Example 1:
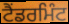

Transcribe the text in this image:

ਟੈਂਡਰਮਿੰਟ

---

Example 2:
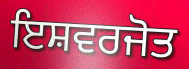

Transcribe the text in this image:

ਇਸ਼ਵਰਜੋਤ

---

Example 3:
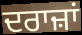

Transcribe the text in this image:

ਦਰਾਜ਼ਾਂ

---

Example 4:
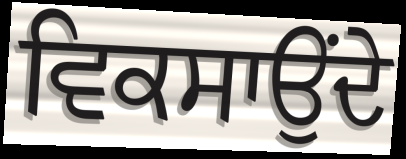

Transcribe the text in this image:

ਵਿਕਸਾਉਂਦੇ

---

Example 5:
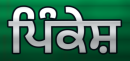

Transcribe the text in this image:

ਪਿੰਕੇਸ਼